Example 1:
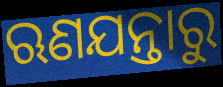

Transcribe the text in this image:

ଋଣଯନ୍ତାରୁ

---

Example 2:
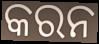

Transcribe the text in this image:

କରନ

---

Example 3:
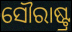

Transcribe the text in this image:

ସୌରାଷ୍ଟ୍ର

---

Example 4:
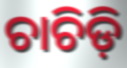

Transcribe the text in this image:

ଚାଚିଡ଼ି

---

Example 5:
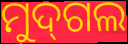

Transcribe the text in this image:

ମୁଦ୍‌ଗଲ